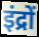
इंद्रों